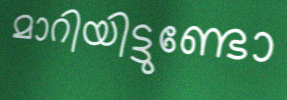
മാറിയിട്ടുണ്ടോ